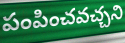
పంపించవచ్చని